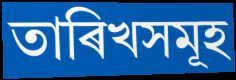
তাৰিখসমূহ